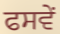
ਫਸਵੇਂ